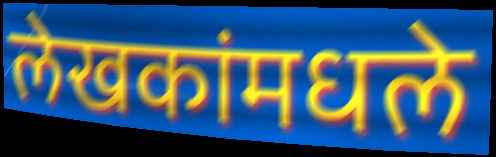
लेखकांमधले